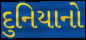
દુનિયાનો